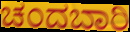
ಚಂದಬಾರಿ